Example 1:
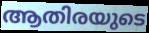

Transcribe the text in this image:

ആതിരയുടെ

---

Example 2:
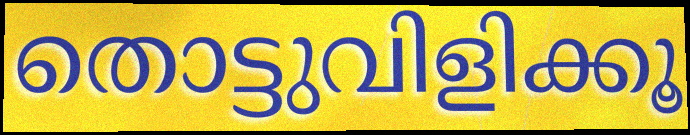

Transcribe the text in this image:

തൊട്ടുവിളിക്കൂ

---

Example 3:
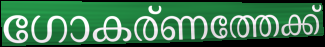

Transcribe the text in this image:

ഗോകര്ണത്തേക്ക്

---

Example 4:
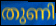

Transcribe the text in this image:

തുണി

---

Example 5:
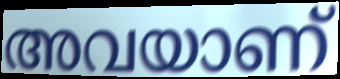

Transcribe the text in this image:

അവയാണ്